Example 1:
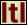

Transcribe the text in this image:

ltl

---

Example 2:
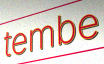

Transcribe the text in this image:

tembe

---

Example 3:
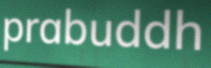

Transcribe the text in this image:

prabuddh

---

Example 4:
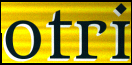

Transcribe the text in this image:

otri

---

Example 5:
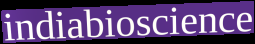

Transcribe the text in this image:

indiabioscience